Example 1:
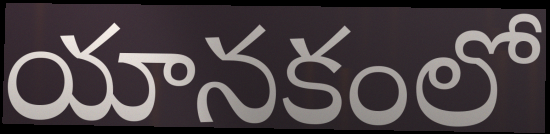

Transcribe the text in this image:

యానకంలో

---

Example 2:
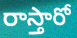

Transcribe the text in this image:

రాస్తారో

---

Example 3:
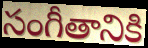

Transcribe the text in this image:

సంగీతానికి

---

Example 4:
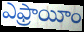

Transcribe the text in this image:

ఎఫ్రాయీం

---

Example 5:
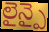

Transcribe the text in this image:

లైన్పై